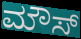
ಮೌಸ್